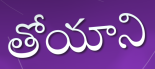
తోయాని